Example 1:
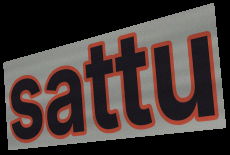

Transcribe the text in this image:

sattu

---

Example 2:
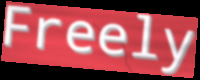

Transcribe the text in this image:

Freely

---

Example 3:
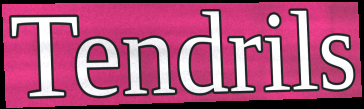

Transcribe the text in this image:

Tendrils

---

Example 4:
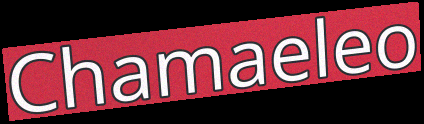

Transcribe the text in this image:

Chamaeleo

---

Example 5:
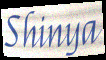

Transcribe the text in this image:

Shinya